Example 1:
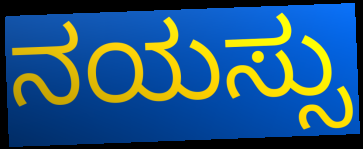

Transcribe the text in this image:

ನಯಸ್ಸು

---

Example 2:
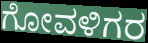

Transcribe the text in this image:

ಗೋವಳಿಗರ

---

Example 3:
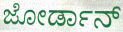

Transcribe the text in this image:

ಜೋರ್ಡಾನ್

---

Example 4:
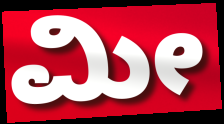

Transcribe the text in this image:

ಮೀ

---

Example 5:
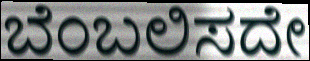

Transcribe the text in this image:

ಬೆಂಬಲಿಸದೇ